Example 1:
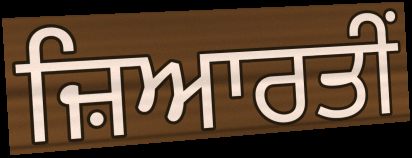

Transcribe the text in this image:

ਜ਼ਿਆਰਤੀਂ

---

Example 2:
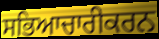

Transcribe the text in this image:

ਸਭਿਆਚਾਰੀਕਰਨ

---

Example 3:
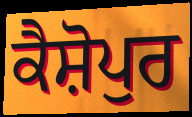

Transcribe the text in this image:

ਕੈਸ਼ੋਪੁਰ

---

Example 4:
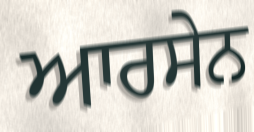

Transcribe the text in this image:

ਆਰਸੇਨ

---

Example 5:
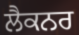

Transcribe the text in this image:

ਲੈਕਨਰ